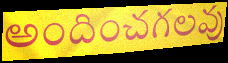
అందించగలవు